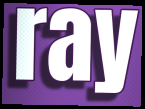
ray